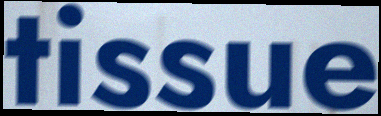
tissue